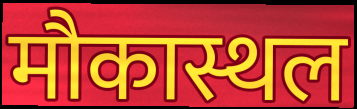
मौकास्थल